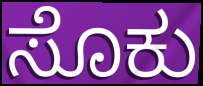
ಸೊಕು